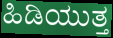
ಹಿಡಿಯುತ್ತ